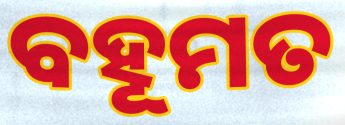
ବହୂମତ